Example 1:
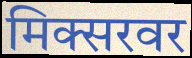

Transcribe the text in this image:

मिक्‍सरवर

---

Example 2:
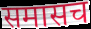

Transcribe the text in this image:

समासच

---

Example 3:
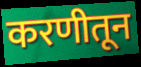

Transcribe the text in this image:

करणीतून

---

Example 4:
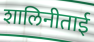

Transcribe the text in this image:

शालिनीताई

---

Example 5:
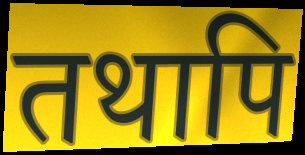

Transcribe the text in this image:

तथापि